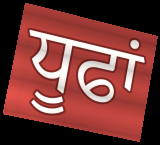
ਧੂਫਾਂ